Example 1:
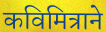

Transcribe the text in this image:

कविमित्राने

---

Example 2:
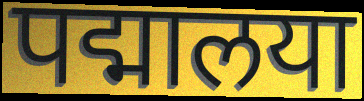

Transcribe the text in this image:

पद्मालया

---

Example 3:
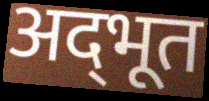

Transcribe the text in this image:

अद्‌भूत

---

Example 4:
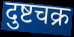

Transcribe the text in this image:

दुष्टचक्र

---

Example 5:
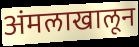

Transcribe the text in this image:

अंमलाखालून